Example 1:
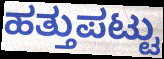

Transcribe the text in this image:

ಹತ್ತುಪಟ್ಟು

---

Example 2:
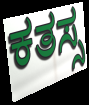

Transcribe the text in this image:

ಕತಸ್ಸ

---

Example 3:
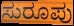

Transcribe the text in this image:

ಸುರೂಪು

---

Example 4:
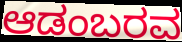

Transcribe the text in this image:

ಆಡಂಬರವ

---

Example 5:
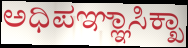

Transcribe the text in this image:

ಅಧಿಪಞ್ಞಾಸಿಕ್ಖಾ